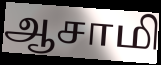
ஆசாமி